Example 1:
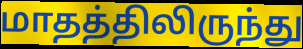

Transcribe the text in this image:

மாதத்திலிருந்து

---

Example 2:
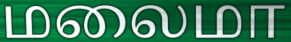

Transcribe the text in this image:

மலைமா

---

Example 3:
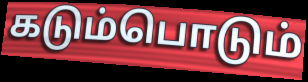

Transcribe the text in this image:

கடும்பொடும்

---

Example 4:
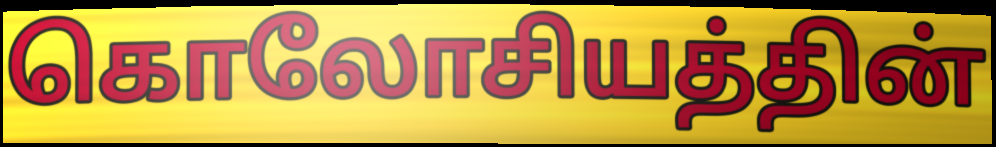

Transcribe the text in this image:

கொலோசியத்தின்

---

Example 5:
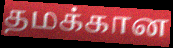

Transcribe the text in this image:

தமக்கான